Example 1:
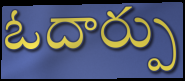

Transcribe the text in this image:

ఓదార్పు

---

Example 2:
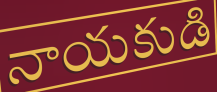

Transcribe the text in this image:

నాయకుడి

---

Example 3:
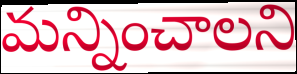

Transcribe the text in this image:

మన్నించాలని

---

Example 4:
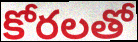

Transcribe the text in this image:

కోరలతో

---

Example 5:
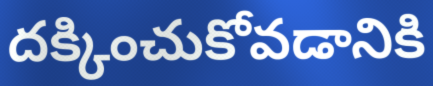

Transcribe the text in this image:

దక్కించుకోవడానికి